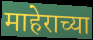
माहेराच्या